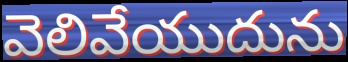
వెలివేయుదును